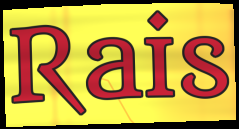
Rais